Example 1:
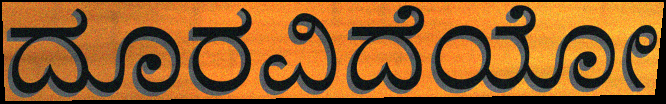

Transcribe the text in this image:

ದೂರವಿದೆಯೋ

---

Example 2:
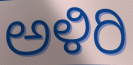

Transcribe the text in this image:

ಅಳಿರಿ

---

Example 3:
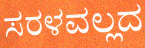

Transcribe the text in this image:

ಸರಳವಲ್ಲದ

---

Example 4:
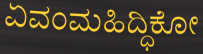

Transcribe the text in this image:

ಏವಂಮಹಿದ್ಧಿಕೋ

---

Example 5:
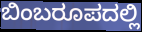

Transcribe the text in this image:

ಬಿಂಬರೂಪದಲ್ಲಿ